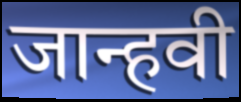
जान्‍हवी